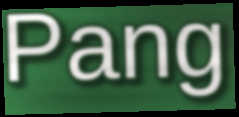
Pang